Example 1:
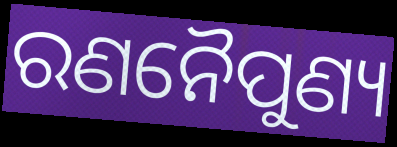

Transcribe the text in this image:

ରଣନୈପୁଣ୍ୟ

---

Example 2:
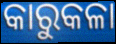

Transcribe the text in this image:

କାରୁକଳା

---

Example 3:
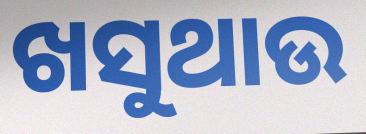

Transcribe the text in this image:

ଖସୁଥାଉ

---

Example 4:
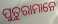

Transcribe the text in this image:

ପୁତୁରାମାନେ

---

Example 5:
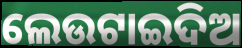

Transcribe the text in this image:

ଲେଉଟାଇଦିଅ